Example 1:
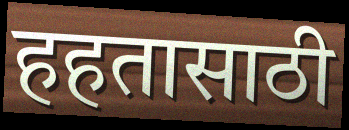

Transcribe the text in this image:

हहतासाठी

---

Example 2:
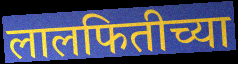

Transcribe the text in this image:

लालफितीच्या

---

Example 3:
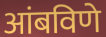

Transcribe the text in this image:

आंबविणे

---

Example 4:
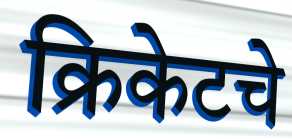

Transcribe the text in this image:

क्रिकेटचे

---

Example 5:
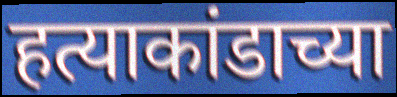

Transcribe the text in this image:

हत्याकांडाच्या